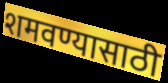
शमवण्यासाठी